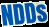
NDDs